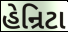
હેન્રિટા